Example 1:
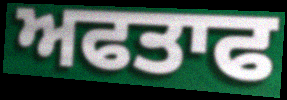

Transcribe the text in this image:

ਅਫਤਾਫ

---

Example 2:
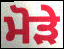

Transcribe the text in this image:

ਮੋੜੇ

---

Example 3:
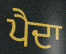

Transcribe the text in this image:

ਪੈਦਾ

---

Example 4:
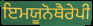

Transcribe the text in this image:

ਇਮਯੂਨੋਥੈਰੇਪੀ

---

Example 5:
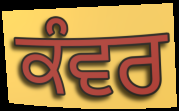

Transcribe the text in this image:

ਕੰਵਰ